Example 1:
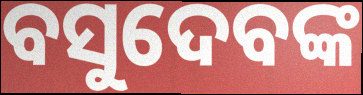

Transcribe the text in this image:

ବସୁଦେବଙ୍କ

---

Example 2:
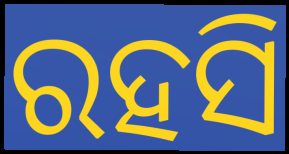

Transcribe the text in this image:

ରହସି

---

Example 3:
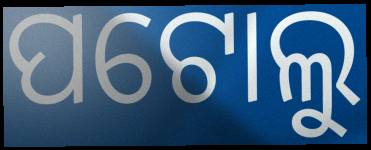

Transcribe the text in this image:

ପଟୋଲୁ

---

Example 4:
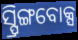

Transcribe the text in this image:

ସ୍ପ୍ରିଙ୍ଗବୋକ୍ସ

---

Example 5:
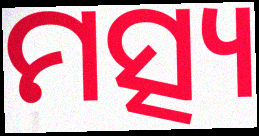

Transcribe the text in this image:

ମତ୍ସ୍ୟ